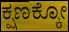
ಕ್ಷಣಕ್ಕೋ